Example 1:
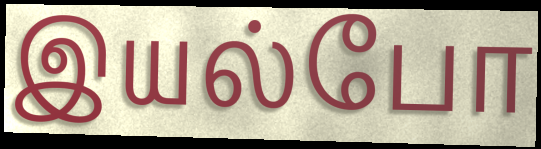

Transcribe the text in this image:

இயல்போ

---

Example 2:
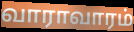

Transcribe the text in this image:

வாராவாரம்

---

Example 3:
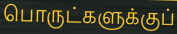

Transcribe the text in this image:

பொருட்களுக்குப்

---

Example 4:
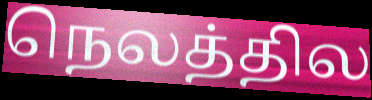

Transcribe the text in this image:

நெலத்தில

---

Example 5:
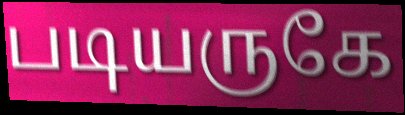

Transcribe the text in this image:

படியருகே